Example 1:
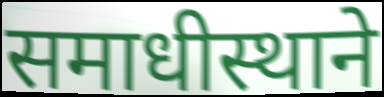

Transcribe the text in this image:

समाधीस्थाने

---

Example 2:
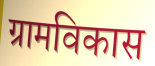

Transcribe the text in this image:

ग्रामविकास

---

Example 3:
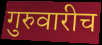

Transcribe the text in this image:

गुरुवारीच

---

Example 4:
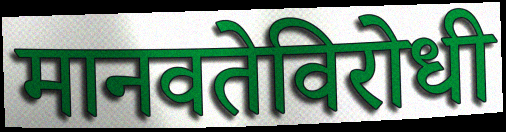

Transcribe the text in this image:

मानवतेविरोधी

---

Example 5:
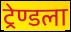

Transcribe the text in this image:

ट्रेण्डला